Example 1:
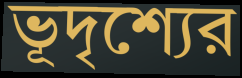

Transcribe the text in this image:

ভূদৃশ্যের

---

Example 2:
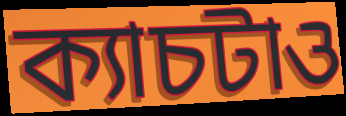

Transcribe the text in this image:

ক্যাচটাও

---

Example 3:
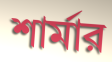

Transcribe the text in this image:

শার্মার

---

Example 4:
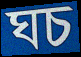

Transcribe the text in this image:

ঘচ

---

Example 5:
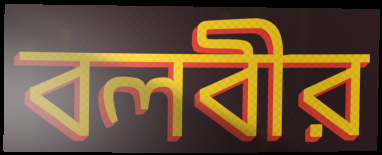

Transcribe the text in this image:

বলবীর